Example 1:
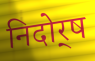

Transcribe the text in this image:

निदोर्ष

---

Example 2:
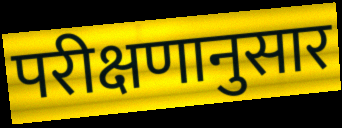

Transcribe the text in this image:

परीक्षणानुसार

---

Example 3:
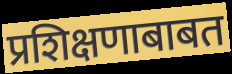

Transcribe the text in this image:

प्रशिक्षणाबाबत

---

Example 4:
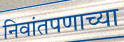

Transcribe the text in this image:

निवांतपणाच्या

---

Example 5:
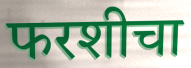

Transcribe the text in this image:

फरशीचा